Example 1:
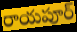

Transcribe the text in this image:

రాయపూర్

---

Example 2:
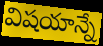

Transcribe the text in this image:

విషయాన్నే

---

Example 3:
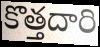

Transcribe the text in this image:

కొత్తదారి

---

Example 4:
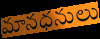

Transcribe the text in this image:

మానధనులు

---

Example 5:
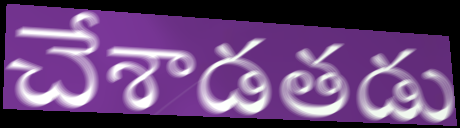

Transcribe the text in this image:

చేశాడతడు